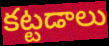
కట్టడాలు